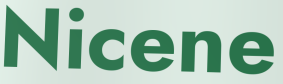
Nicene